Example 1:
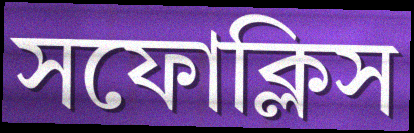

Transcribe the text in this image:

সফোক্লিস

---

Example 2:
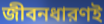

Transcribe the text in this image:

জীবনধারণই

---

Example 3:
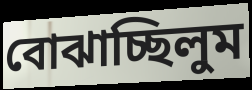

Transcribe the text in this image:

বোঝাচ্ছিলুম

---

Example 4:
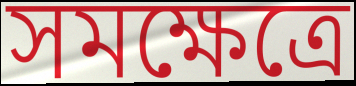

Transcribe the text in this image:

সমক্ষেত্রে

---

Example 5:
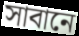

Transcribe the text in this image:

সাবানে